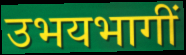
उभयभागीं